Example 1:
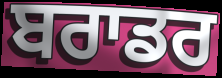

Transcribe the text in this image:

ਬਰਾਡਰ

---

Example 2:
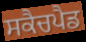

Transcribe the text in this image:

ਸਕੈਚਪੈਡ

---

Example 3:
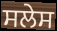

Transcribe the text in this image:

ਸਲੇਸ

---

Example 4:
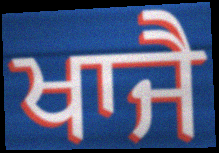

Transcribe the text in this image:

ਖਾਜੈ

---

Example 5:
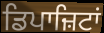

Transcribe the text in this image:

ਡਿਪਾਜ਼ਿਟਾਂ